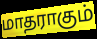
மாதராகும்